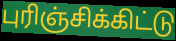
புரிஞ்சிக்கிட்டு